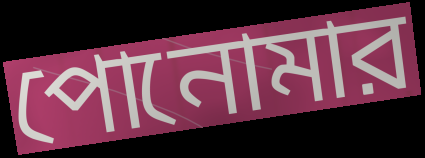
পোনোমার